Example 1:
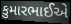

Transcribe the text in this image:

કુમારભાઈએ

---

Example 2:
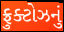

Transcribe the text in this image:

ફ્રુક્ટોઝનું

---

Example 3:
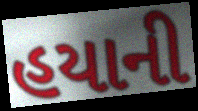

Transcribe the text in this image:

હયાની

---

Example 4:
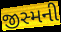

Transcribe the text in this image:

જીસ્મની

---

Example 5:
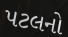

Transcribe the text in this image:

પટલનો